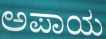
ಅಪಾಯ